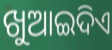
ଖୁଆଇଦିଏ